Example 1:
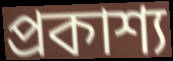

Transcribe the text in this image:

প্ৰকাশ্য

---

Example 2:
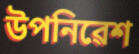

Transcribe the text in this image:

উপনিৱেশ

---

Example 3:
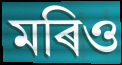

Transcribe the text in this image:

মৰিও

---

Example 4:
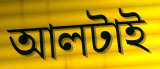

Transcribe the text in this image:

আলটাই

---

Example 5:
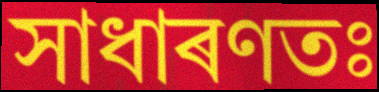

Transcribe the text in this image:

সাধাৰণতঃ